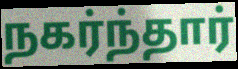
நகர்ந்தார்